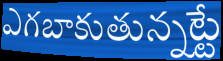
ఎగబాకుతున్నట్టే